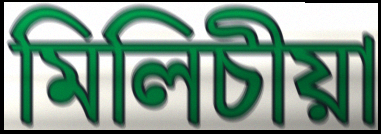
মিলিচীয়া